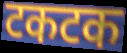
टकटक